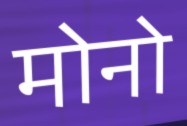
मोनो